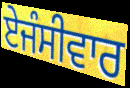
ਏਜੰਸੀਵਾਰ